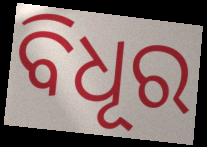
ବିଧୂର